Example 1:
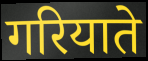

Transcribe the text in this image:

गरियाते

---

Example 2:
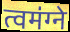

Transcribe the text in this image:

त्वम॑ग्ने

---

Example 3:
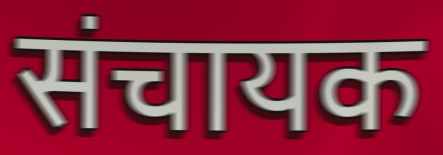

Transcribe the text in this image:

संचायक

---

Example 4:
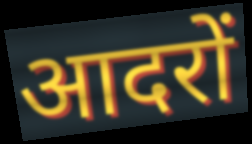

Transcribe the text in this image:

आदरों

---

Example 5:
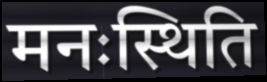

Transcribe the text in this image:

मनःस्थिति